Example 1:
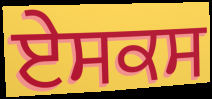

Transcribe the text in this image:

ਏਸਕਸ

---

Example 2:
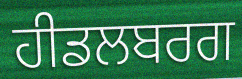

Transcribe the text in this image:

ਹੀਡਲਬਰਗ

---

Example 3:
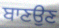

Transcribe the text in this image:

ਬਾਣਉਣ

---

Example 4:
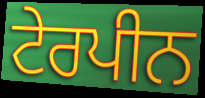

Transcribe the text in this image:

ਟੇਰਪੀਨ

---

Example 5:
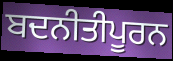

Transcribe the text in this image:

ਬਦਨੀਤੀਪੂਰਨ